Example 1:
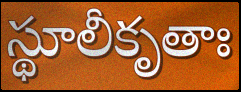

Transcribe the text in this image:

స్థూలీకృతాః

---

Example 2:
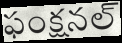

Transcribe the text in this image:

ఫంక్షనల్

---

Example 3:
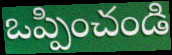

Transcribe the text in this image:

ఒప్పించండి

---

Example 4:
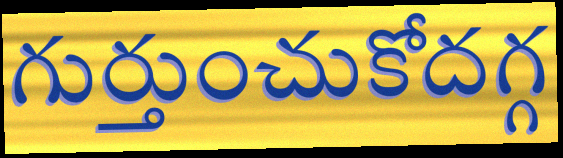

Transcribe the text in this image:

గుర్తుంచుకోదగ్గ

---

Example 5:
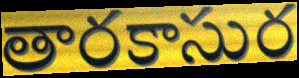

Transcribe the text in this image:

తారకాసుర